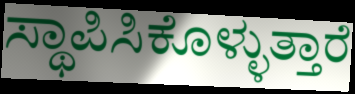
ಸ್ಥಾಪಿಸಿಕೊಳ್ಳುತ್ತಾರೆ